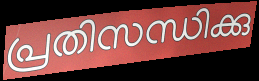
പ്രതിസന്ധിക്കു